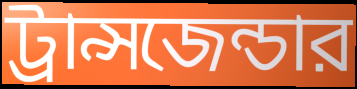
ট্রান্সজেন্ডার